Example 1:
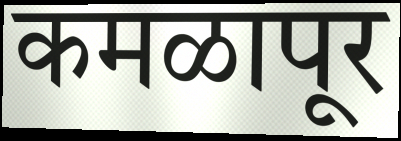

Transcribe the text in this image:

कमळापूर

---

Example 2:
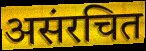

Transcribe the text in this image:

असंरचित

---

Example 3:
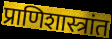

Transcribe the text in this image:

प्राणिशास्त्रांत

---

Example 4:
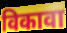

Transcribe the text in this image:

विकावा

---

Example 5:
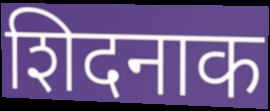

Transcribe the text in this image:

शिदनाक